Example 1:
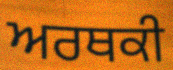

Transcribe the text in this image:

ਅਰਥਕੀ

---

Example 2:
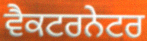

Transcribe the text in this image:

ਵੈਕਟਰਨੇਟਰ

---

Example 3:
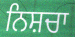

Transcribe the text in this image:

ਨਿਸ਼ਚਾ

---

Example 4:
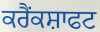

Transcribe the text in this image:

ਕਰੈਂਕਸ਼ਾਫਟ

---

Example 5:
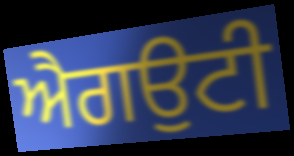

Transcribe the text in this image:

ਐਗਉਟੀ